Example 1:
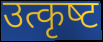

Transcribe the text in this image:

उत्कृष्‍ट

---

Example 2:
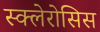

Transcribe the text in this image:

स्क्लेरोसिस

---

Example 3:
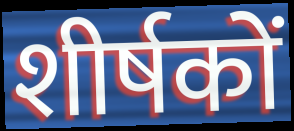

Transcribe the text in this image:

शीर्षकों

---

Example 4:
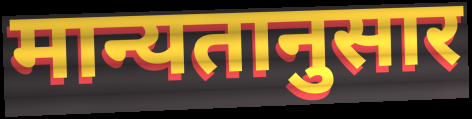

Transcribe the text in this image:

मान्यतानुसार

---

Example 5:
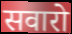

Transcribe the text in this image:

सवारो